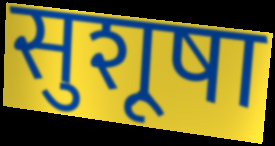
सुश्रूषा